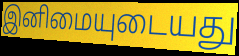
இனிமையுடையது